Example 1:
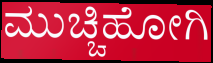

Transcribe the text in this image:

ಮುಚ್ಚಿಹೋಗಿ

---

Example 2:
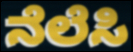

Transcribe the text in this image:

ನೆಲೆಸಿ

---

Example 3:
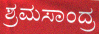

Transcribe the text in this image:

ಶ್ರಮಸಾಂದ್ರ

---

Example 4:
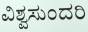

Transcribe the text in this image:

ವಿಶ್ವಸುಂದರಿ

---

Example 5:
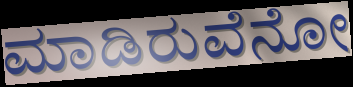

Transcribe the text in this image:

ಮಾಡಿರುವೆನೋ